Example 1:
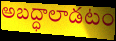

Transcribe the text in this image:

అబద్ధాలాడటం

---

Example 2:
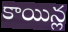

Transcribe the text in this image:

కాయిన్ల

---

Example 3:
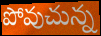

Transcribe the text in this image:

పోవుచున్న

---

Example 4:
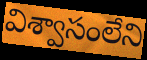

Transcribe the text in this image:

విశ్వాసంలేని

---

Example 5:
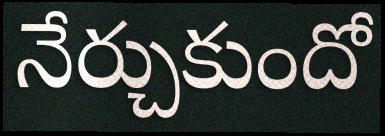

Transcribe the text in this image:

నేర్చుకుందో